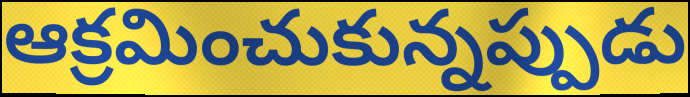
ఆక్రమించుకున్నప్పుడు